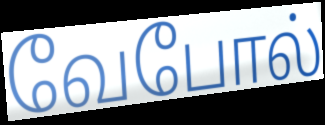
வேபோல்